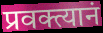
प्रवक्त्यानं